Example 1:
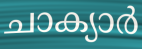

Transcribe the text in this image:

ചാക്യാർ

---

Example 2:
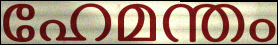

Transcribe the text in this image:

ഹേമന്തം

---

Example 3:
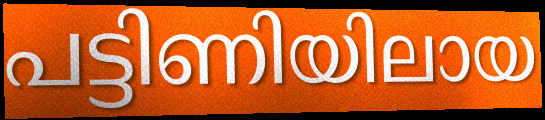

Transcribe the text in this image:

പട്ടിണിയിലായ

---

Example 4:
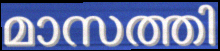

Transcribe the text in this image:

മാസത്തി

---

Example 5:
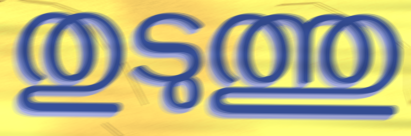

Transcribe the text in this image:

തുടുത്തു